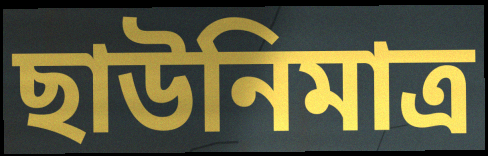
ছাউনিমাত্র